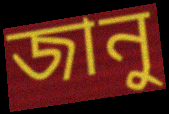
জানু